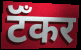
टॅँकर